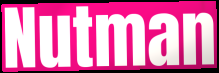
Nutman